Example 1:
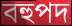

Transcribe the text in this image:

বহুপদ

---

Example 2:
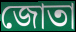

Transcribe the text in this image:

জোতা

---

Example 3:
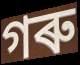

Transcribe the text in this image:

গৰু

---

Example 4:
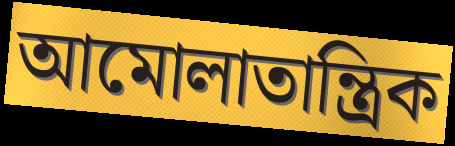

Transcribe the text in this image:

আমোলাতান্ত্ৰিক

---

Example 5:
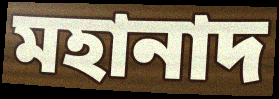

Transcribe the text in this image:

মহানাদ